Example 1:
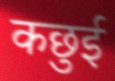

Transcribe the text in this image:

कछुई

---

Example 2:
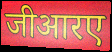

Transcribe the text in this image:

जीआरए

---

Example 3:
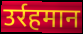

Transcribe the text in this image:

उर्रहमान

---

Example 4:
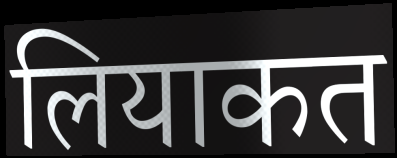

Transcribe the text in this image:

लियाकत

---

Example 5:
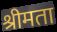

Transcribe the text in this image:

श्रीमता